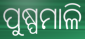
ପୁଷ୍ପମାଳି